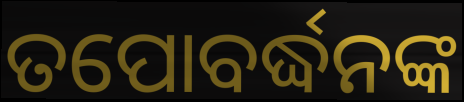
ତପୋବର୍ଦ୍ଧନଙ୍କ